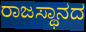
ರಾಜಸ್ಥಾನದ